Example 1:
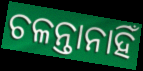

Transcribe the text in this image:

ଚଳନ୍ତାନାହିଁ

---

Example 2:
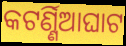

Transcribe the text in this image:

କଟର୍ଣ୍ଣିଆଘାଟ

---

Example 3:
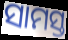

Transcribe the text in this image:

ସାମସ୍ତ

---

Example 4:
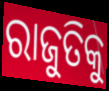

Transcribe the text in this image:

ରାଜୁତିକୁ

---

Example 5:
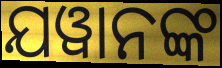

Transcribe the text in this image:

ଯୱାନଙ୍କ